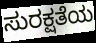
ಸುರಕ್ಷತೆಯ